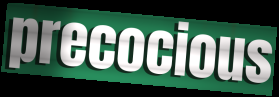
precocious